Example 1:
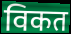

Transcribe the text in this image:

विकत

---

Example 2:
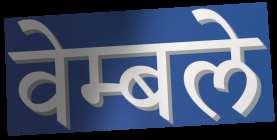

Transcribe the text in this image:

वेम्बले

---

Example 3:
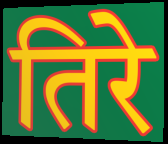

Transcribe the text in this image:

तिरे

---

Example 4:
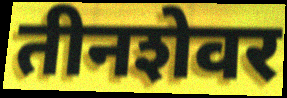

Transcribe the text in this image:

तीनशेवर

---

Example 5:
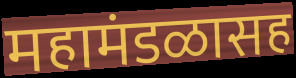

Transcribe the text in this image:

महामंडळासह